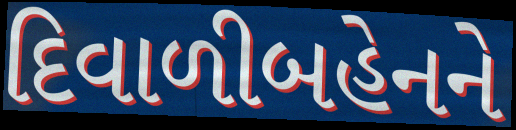
દિવાળીબહેનને